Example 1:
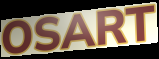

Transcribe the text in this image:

OSART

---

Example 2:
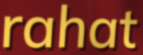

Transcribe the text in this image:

rahat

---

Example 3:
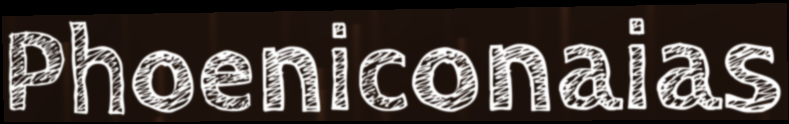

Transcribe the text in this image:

Phoeniconaias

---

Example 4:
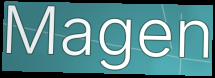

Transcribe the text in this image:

Magen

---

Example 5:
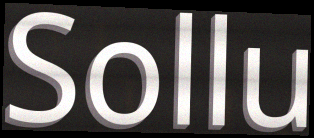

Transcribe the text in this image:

Sollu